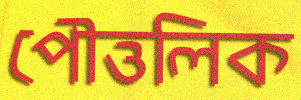
পৌত্তলিক